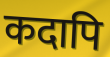
कदापि